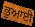
ਭੁਆਈ